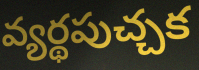
వ్యర్థపుచ్చక